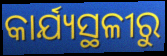
କାର୍ଯ୍ୟସ୍ଥଳୀରୁ